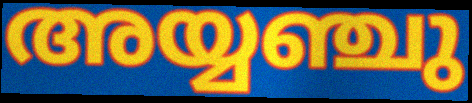
അയ്യഞ്ചു